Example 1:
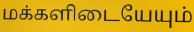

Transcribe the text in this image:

மக்களிடையேயும்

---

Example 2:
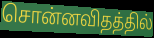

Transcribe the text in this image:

சொன்னவிதத்தில்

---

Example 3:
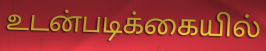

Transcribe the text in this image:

உடன்படிக்கையில்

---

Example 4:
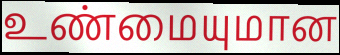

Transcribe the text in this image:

உண்மையுமான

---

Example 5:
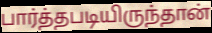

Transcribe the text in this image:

பார்த்தபடியிருந்தான்